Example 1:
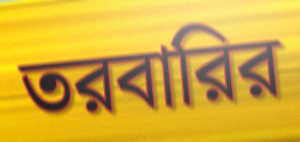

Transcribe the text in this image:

তরবারির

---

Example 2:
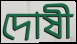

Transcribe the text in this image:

দোষী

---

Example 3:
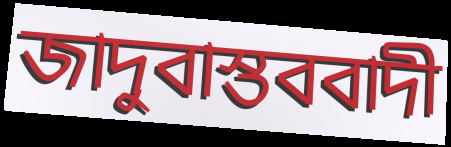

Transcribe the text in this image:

জাদুবাস্তববাদী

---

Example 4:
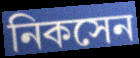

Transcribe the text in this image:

নিকসেন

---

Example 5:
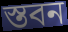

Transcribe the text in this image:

স্তবন